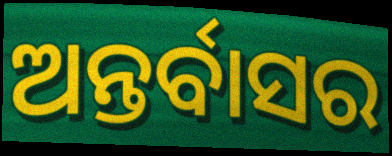
ଅନ୍ତର୍ବାସର